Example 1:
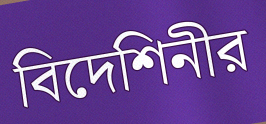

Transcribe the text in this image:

বিদেশিনীর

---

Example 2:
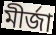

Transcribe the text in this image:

মীর্জা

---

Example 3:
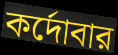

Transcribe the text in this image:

কর্দোবার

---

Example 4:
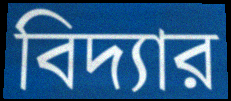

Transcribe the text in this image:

বিদ্যার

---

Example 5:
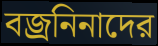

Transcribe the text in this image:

বজ্রনিনাদের